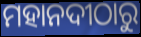
ମହାନଦୀଠାରୁ